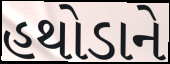
હથોડાને